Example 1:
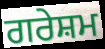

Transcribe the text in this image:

ਗਰੇਸ਼ਮ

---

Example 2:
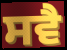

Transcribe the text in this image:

ਸਵੈ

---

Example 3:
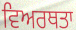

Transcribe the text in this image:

ਵਿਅਰਥਤਾ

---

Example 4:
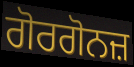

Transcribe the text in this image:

ਗੋਰਗੋਨਜ਼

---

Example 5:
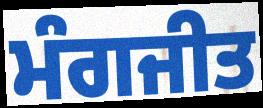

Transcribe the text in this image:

ਮੰਗਜੀਤ